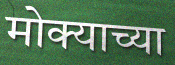
मोक्याच्या